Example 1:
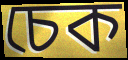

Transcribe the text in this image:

চেক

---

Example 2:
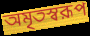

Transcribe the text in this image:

অমৃতস্বরূপ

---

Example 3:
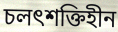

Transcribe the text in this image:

চলৎশক্তিহীন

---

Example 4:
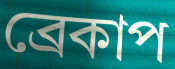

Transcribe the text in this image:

ব্রেকাপ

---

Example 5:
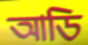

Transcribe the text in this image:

আডি